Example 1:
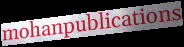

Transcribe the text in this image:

mohanpublications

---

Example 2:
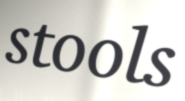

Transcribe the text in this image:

stools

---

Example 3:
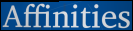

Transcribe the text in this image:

Affinities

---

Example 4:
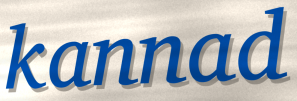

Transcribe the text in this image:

kannad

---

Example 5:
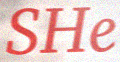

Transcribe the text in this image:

SHe